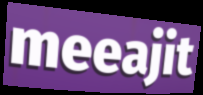
meeajit